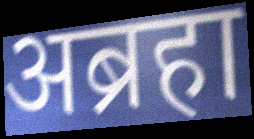
अब्रहा